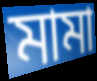
মামা